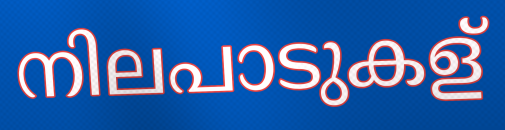
നിലപാടുകള്